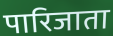
पारिजाता